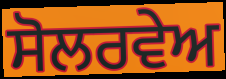
ਸੋਲਰਵੇਅ